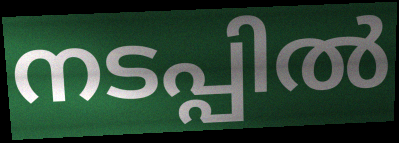
നടപ്പിൽ